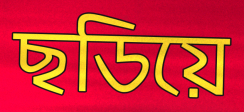
ছডিয়ে